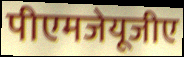
पीएमजेयूजीए